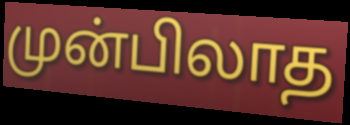
முன்பிலாத